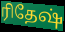
ரிதேஷ்